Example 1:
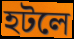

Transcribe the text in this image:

হটলে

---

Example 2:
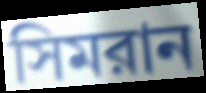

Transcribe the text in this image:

সিমরান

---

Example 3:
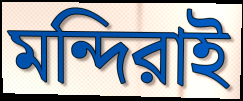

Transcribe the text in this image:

মন্দিরাই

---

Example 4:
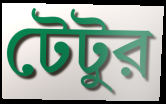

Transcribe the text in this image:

টেটুর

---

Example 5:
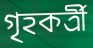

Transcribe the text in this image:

গৃহকর্ত্রী